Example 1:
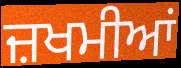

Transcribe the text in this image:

ਜ਼ਖਮੀਆਂ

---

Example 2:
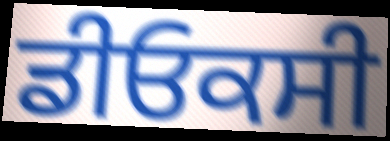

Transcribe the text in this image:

ਡੀਓਕਸੀ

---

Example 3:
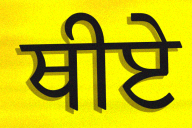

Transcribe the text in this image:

ਥੀਏ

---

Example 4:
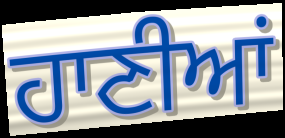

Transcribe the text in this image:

ਹਾਣੀਆਂ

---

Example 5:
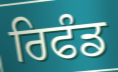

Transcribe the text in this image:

ਰਿਫੰਡ